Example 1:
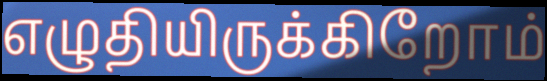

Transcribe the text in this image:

எழுதியிருக்கிறோம்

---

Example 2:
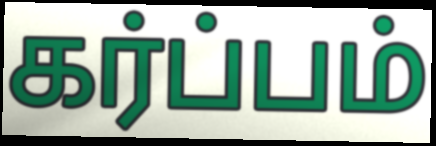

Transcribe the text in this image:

கர்ப்பம்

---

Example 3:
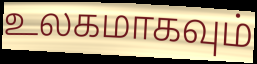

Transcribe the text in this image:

உலகமாகவும்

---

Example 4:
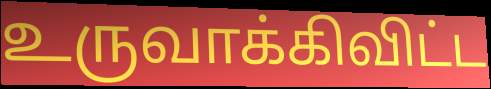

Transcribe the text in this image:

உருவாக்கிவிட்ட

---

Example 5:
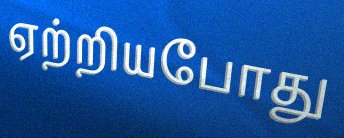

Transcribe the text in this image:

ஏற்றியபோது